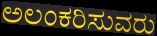
ಅಲಂಕರಿಸುವರು